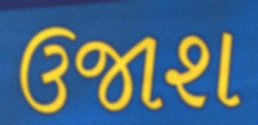
ઉજાશ